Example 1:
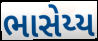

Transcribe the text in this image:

ભાસેય્ય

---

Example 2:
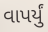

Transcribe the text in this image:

વાપર્યું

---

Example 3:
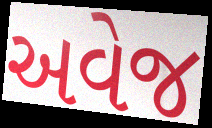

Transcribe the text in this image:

અવેજ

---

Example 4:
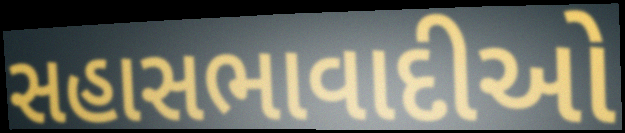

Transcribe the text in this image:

સહાસભાવાદીઓ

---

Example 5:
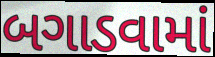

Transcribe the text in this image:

બગાડવામાં